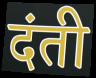
दंती